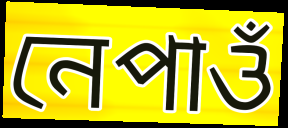
নেপাওঁ